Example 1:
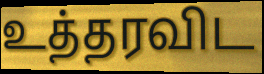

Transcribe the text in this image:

உத்தரவிட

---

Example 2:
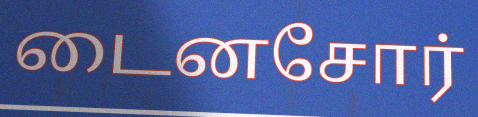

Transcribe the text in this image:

டைனசோர்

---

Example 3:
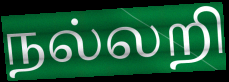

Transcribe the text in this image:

நல்லறி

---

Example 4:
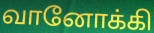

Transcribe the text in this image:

வானோக்கி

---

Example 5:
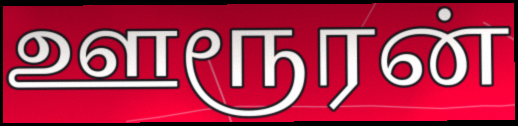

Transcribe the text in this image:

ஊரூரன்